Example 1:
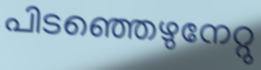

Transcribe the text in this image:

പിടഞ്ഞെഴുനേറ്റു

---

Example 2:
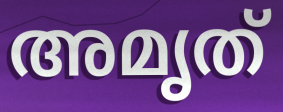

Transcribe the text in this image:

അമൃത്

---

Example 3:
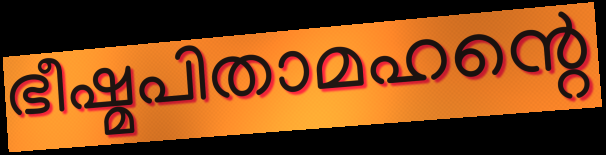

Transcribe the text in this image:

ഭീഷ്മപിതാമഹന്റെ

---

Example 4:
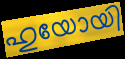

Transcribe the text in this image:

ഹുയോയി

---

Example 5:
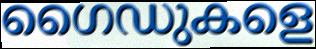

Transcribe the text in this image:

ഗൈഡുകളെ